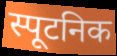
स्पूटनिक